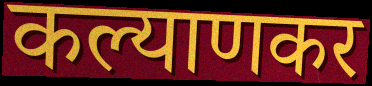
कल्याणकर